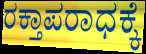
ರಕ್ತಾಪರಾಧಕ್ಕೆ